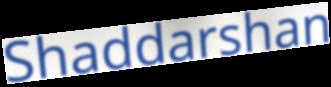
Shaddarshan